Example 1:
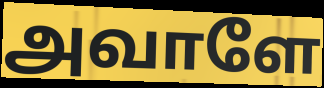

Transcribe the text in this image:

அவாளே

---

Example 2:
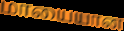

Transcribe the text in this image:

மாயையான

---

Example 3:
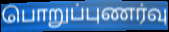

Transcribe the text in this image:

பொறுப்புணர்வு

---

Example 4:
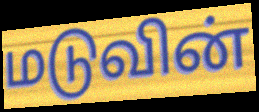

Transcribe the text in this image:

மடுவின்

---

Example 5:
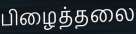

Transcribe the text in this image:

பிழைத்தலை